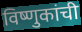
विष्णुकांची